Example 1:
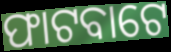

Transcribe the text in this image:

ଫାଟବାଟେ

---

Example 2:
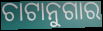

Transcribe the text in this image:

ଚାଟାନୁଗାର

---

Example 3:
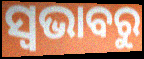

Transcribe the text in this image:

ସ୍ଵଭାବରୁ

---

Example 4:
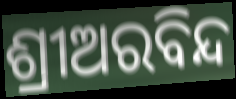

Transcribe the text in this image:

ଶ୍ରୀଅରବିନ୍ଦ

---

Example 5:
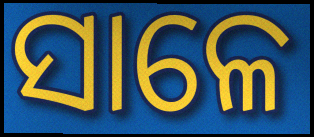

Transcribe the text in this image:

ସାଳେ